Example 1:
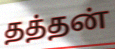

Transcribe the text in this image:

தத்தன்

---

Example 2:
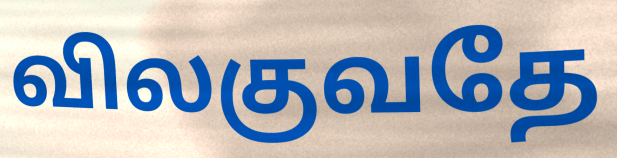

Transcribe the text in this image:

விலகுவதே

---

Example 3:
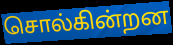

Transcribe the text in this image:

சொல்கின்றன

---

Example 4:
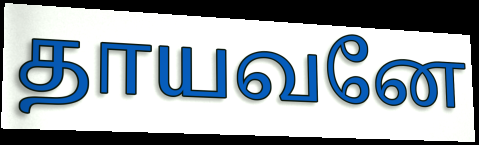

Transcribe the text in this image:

தாயவனே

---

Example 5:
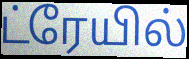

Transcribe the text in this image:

ட்ரேயில்